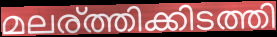
മലര്ത്തിക്കിടത്തി